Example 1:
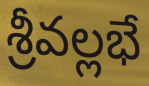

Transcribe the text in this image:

శ్రీవల్లభే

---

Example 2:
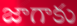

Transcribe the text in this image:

జాగాకు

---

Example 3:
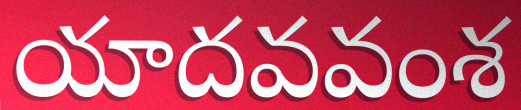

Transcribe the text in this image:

యాదవవంశ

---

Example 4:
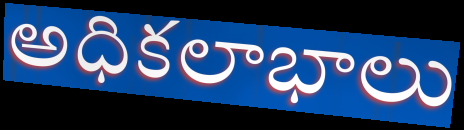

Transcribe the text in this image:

అధికలాభాలు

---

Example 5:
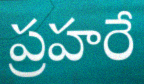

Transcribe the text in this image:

ప్రహరే